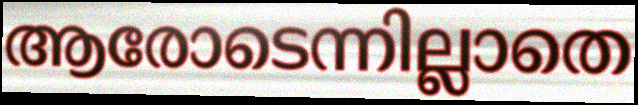
ആരോടെന്നില്ലാതെ